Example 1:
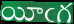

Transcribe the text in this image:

యీఁగ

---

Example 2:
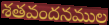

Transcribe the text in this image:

శతవందనముల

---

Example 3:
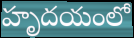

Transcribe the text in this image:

హృదయంలో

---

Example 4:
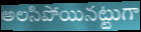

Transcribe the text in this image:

అలసిపోయినట్టుగా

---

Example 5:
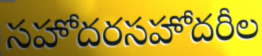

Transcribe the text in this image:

సహోదరసహోదరీల